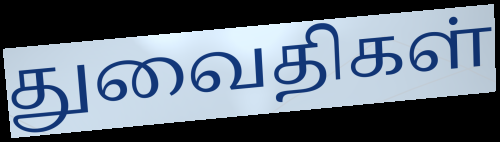
துவைதிகள்